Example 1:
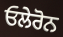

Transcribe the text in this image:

ਓਲੇਰੋਨ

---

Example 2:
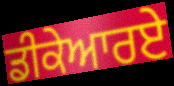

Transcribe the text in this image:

ਡੀਕੇਆਰਏ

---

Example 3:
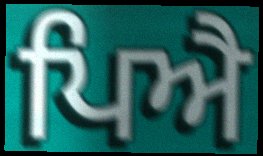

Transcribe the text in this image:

ਪਿਐ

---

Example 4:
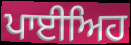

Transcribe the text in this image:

ਪਾਈਅਿਹ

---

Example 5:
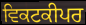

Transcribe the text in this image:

ਵਿਕਟਕੀਪਰ